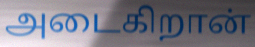
அடைகிறான்